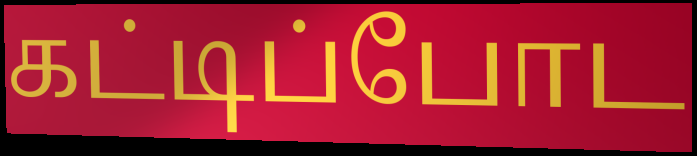
கட்டிப்போட